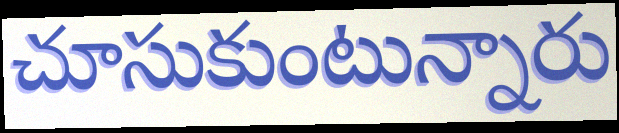
చూసుకుంటున్నారు